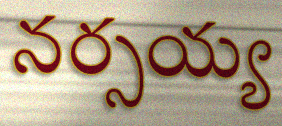
నర్సయ్య